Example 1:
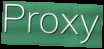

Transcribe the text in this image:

Proxy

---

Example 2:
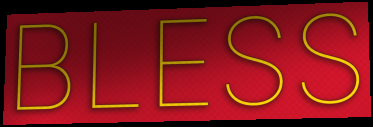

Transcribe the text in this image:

BLESS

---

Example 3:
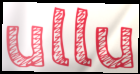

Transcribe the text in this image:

ullu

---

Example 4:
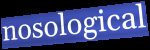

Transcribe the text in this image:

nosological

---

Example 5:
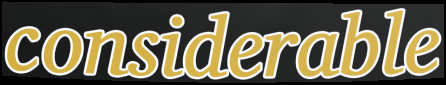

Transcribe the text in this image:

considerable